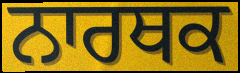
ਨਾਰਥਕ